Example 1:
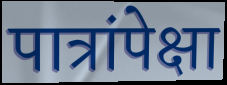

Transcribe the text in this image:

पात्रांपेक्षा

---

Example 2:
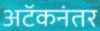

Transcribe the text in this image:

अटॅकनंतर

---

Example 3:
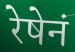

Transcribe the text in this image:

रेषेनं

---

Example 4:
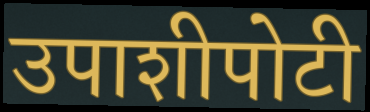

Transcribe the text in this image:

उपाशीपोटी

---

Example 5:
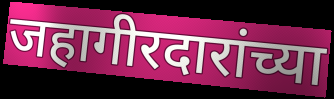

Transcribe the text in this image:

जहागीरदारांच्या